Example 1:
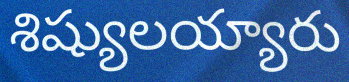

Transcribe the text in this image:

శిష్యులయ్యారు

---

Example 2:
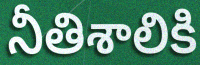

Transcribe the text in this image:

నీతిశాలికి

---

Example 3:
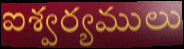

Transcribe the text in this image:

ఐశ్వర్యములు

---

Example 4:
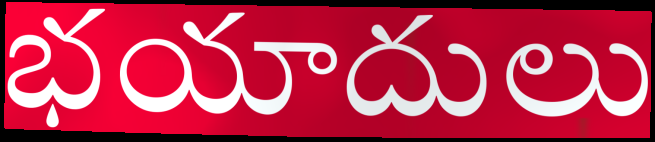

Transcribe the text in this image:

భయాదులు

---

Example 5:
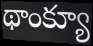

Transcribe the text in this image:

థాంక్యూ